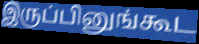
இருப்பினுங்கூட